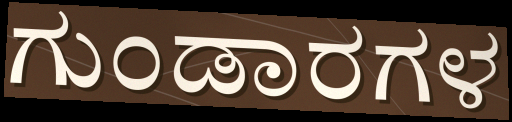
ಗುಂಡಾರಗಳ